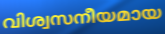
വിശ്വസനീയമായ